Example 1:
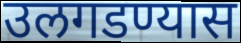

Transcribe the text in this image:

उलगडण्यास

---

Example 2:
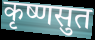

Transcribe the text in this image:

कृष्णसुत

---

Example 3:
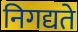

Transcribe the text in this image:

निगद्यते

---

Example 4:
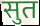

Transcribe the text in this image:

सुत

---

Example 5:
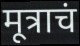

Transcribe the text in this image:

मूत्राचं